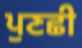
ਪੁਣਛੀ